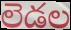
లెడల